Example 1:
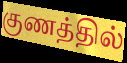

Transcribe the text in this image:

குணத்தில்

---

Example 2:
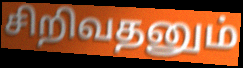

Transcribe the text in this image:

சிறிவதனும்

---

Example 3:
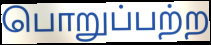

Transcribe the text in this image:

பொறுப்பற்ற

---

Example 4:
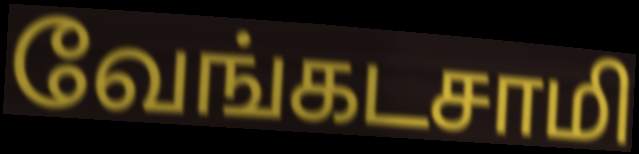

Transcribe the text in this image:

வேங்கடசாமி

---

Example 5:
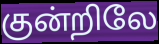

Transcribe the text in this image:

குன்றிலே